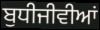
ਬੁਧੀਜੀਵੀਆਂ